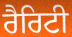
ਰੈਰਿਟੀ